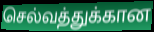
செல்வத்துக்கான